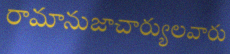
రామానుజాచార్యులవారు